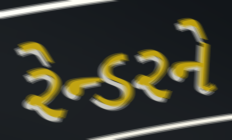
રેન્ડરને